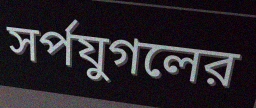
সর্পযুগলের